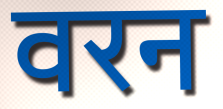
वरन